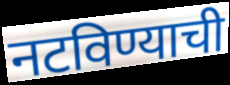
नटविण्याची